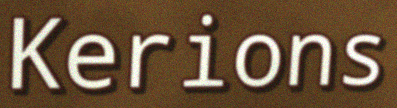
Kerions